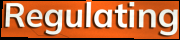
Regulating